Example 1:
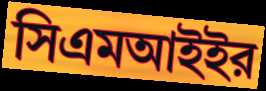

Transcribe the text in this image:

সিএমআইইর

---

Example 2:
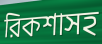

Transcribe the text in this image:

রিকশাসহ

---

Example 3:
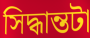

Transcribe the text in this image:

সিদ্ধান্তটা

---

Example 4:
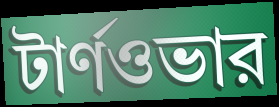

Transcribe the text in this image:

টার্ণওভার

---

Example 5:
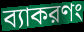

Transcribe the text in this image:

ব্যাকরণং